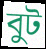
বুট